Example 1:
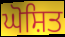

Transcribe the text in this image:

ਘੋਸ਼ਿਤ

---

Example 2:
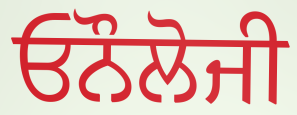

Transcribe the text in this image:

ਓਨੌਲੋਜੀ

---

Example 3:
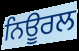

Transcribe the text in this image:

ਨਿਊਰਲ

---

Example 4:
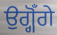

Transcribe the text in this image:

ਉਗ੍ਗੋਁਗੇ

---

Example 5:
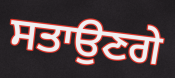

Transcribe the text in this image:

ਸਤਾਉਣਗੇ